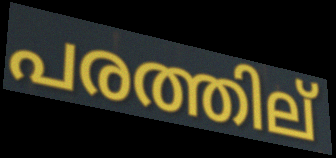
പരത്തില്